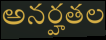
అనర్హతల